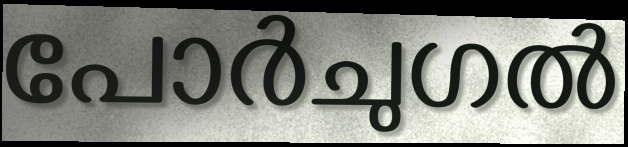
പോർചുഗൽ